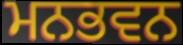
ਮਨਭਵਨ